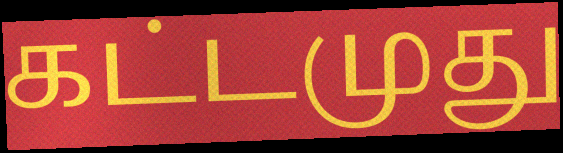
கட்டமுது